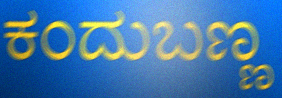
ಕಂದುಬಣ್ಣ